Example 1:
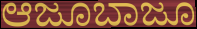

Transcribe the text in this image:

ಆಜೂಬಾಜೂ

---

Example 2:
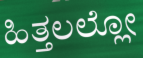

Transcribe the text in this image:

ಹಿತ್ತಲಲ್ಲೋ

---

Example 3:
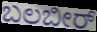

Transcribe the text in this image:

ಬಲಬೀರ್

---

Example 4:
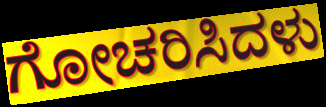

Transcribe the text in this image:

ಗೋಚರಿಸಿದಳು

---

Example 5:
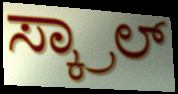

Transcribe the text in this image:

ಸ್ಕ್ರಾಲ್